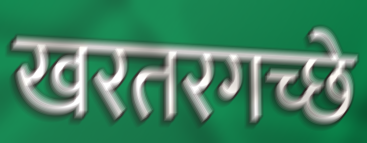
खरतरगच्छे